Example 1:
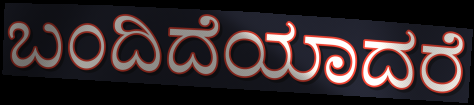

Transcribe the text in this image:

ಬಂದಿದೆಯಾದರೆ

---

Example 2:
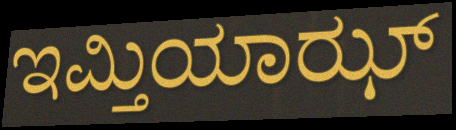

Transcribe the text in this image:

ಇಮ್ತಿಯಾಝ್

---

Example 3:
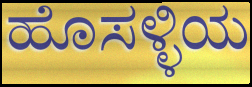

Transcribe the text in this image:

ಹೊಸಳ್ಳಿಯ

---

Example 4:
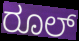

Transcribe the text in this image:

ರೂಲ್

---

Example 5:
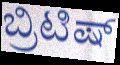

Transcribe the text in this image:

ಬ್ರಿಟಿಷ್